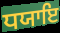
ਧਯਾਇ